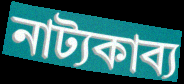
নাট্যকাব্য